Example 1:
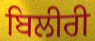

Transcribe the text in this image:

ਬਿਲੀਰੀ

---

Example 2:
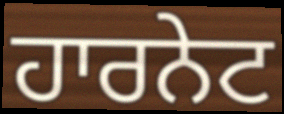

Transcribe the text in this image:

ਹਾਰਨੇਟ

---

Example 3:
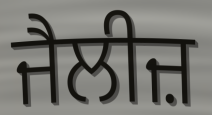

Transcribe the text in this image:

ਜੈਲੀਜ਼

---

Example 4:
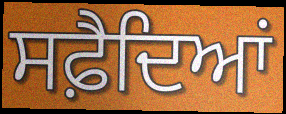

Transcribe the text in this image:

ਸਫ਼ੈਦਿਆਂ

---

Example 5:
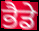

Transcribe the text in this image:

ਭੈਡੇ